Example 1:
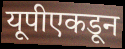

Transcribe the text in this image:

यूपीएकडून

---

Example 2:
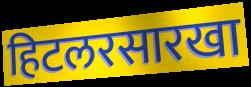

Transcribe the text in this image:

हिटलरसारखा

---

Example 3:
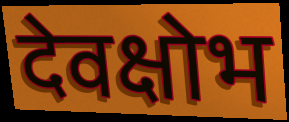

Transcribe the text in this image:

देवक्षोभ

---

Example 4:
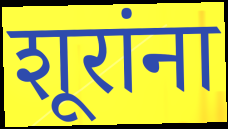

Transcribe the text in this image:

शूरांना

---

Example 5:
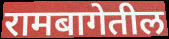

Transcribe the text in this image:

रामबागेतील